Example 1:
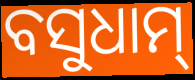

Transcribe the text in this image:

ବସୁଧାମ୍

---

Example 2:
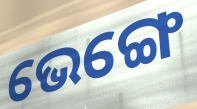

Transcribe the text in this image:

ଭେଙ୍ଗେ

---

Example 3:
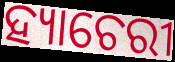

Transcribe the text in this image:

ହ୍ୟାଚେରୀ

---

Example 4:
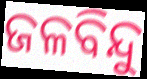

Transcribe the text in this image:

ଜଳବିନ୍ଦୁ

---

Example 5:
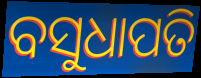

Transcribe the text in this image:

ବସୁଧାପତି